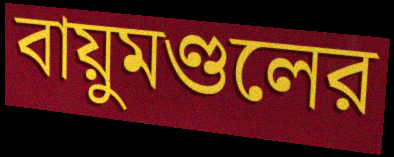
বায়ুমণ্ডলের